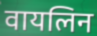
वायलिन